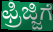
ಫ್ರಿಜ್ಜಿಗೆ